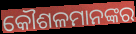
କୌଶଳମାନଙ୍କର